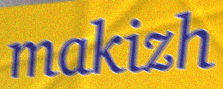
makizh